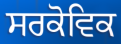
ਸਰਕੋਵਿਕ